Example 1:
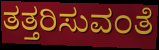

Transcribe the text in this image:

ತತ್ತರಿಸುವಂತೆ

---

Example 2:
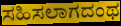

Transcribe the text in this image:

ಸಹಿಸಲಾಗದಂಥ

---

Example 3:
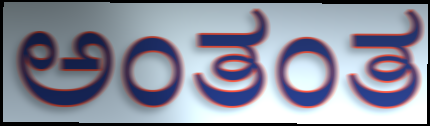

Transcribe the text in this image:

ಅಂತಂತ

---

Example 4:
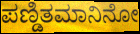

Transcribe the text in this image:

ಪಣ್ಡಿತಮಾನಿನೋ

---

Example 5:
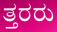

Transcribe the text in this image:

ತ್ತರರು